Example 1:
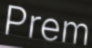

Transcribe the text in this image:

Prem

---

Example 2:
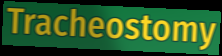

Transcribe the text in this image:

Tracheostomy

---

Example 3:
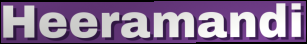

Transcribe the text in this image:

Heeramandi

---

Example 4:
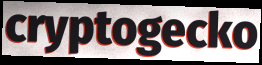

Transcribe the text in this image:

cryptogecko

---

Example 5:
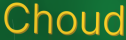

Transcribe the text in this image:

Choud